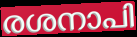
രശനാപി